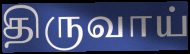
திருவாய்